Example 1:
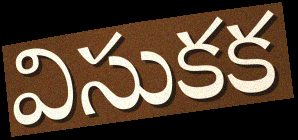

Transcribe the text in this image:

విసుకక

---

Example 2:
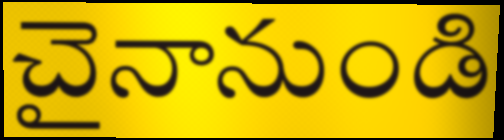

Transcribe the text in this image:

చైనానుండి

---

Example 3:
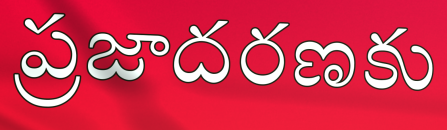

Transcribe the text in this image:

ప్రజాదరణకు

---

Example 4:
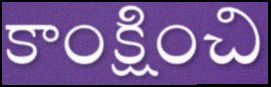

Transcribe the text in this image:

కాంక్షించి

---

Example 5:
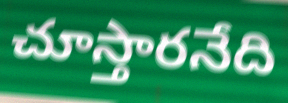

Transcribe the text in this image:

చూస్తారనేది